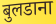
बुलडाना